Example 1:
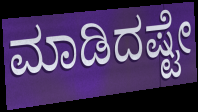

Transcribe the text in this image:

ಮಾಡಿದಷ್ಟೇ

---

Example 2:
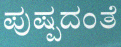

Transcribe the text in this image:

ಪುಷ್ಪದಂತೆ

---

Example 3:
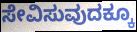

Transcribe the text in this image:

ಸೇವಿಸುವುದಕ್ಕೂ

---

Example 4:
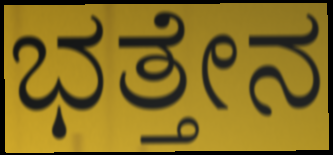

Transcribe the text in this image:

ಭತ್ತೇನ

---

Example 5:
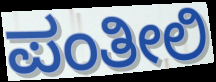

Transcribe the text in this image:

ಪಂತೀಲಿ